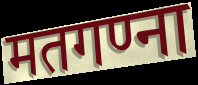
मतगण्ना